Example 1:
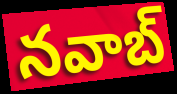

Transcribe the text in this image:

నవాబ్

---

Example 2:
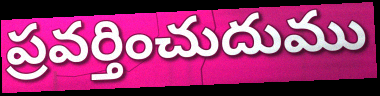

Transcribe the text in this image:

ప్రవర్తించుదుము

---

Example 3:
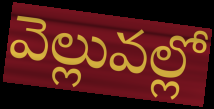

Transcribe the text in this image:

వెల్లువల్లో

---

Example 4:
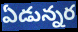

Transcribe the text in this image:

ఏడున్నర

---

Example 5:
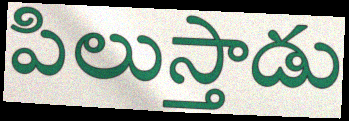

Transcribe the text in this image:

పిలుస్తాడు